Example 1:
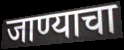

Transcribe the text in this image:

जाण्याचा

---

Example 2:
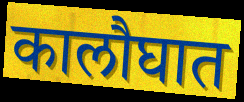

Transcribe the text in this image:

कालौघात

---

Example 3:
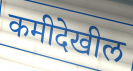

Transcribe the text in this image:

कमीदेखील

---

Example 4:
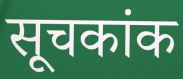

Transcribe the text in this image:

सूचकांक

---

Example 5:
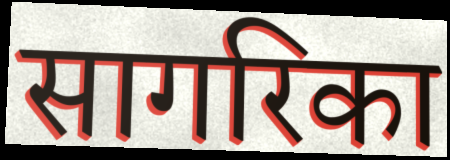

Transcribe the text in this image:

सागरिका